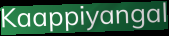
Kaappiyangal